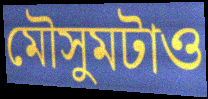
মৌসুমটাও